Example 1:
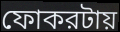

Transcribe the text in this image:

ফোকরটায়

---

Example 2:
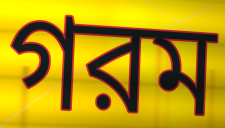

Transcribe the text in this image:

গরম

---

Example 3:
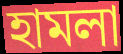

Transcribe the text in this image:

হামলা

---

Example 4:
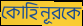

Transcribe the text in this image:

কোহিনূরকে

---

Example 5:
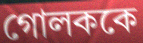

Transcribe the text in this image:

গোলককে